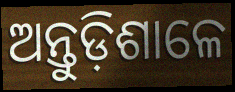
ଅନ୍ତୁଡ଼ିଶାଳେ